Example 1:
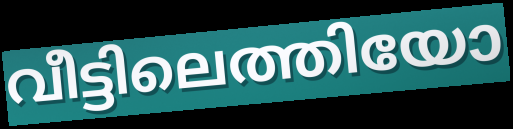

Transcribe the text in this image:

വീട്ടിലെത്തിയോ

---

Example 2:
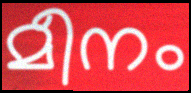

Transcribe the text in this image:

മീനം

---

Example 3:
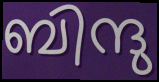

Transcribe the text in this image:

ബിന്ദു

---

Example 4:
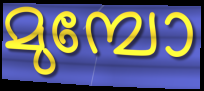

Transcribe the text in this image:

മുമ്പോ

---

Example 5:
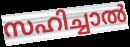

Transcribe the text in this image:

സഹിച്ചാൽ